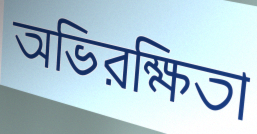
অভিরক্ষিতা